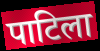
पाटिला